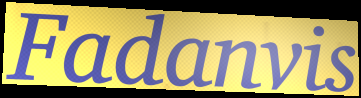
Fadanvis